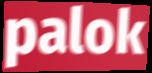
palok